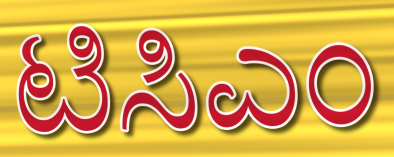
ಟಿಸಿಎಂ